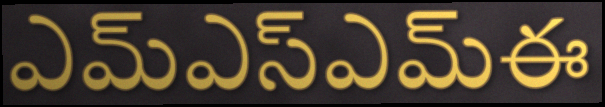
ఎమ్ఎస్ఎమ్ఈ